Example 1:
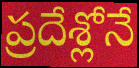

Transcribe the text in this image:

ప్రదేశ్లోనే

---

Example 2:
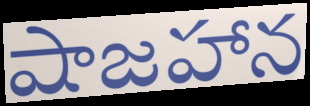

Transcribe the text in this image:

షాజహాన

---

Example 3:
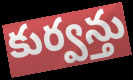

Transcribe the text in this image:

కుర్వన్తు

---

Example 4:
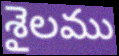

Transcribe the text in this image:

శైలము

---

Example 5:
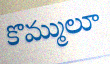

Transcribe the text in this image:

కొమ్ములూ